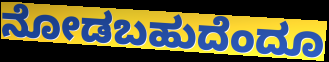
ನೋಡಬಹುದೆಂದೂ